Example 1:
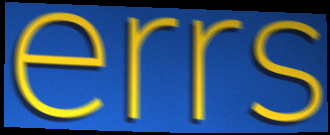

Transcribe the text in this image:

errs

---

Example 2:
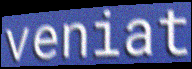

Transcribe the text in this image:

veniat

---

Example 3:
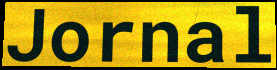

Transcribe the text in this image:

Jornal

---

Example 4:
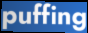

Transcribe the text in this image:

puffing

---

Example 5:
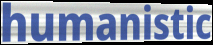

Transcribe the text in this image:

humanistic